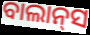
ବାଲାନ୍‌ସ